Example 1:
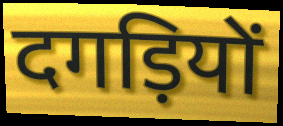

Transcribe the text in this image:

दगड़ियों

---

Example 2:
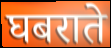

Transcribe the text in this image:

घबराते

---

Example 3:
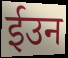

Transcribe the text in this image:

ईउन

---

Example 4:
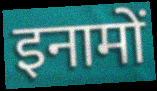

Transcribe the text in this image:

इनामों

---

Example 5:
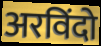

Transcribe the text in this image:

अरविंदो